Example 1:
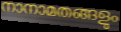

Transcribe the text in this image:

നാനാമതങ്ങളും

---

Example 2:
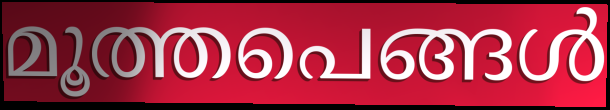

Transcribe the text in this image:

മൂത്തപെങ്ങൾ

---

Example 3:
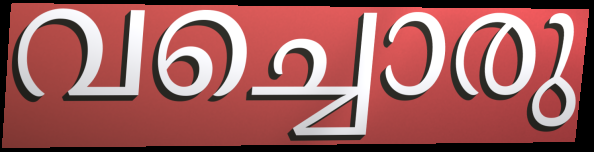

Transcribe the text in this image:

വച്ചൊരു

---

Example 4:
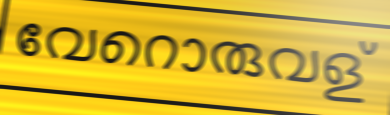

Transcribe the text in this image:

വേറൊരുവള്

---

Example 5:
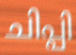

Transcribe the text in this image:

ചിപ്പി